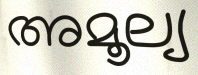
അമൂല്യ